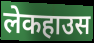
लेकहाउस